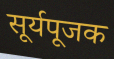
सूर्यपूजक